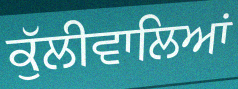
ਕੁੱਲੀਵਾਲਿਆਂ